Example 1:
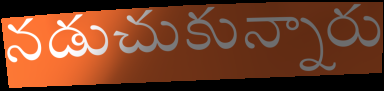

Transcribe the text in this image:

నడుచుకున్నారు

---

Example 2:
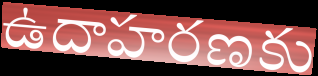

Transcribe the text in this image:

ఉదాహరణకు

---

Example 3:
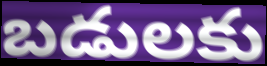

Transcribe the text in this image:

బడులకు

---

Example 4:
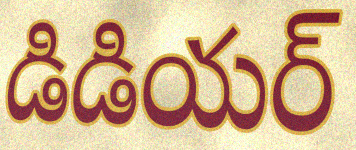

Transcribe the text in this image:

డిడియర్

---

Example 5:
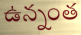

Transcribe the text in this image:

ఉన్నంత